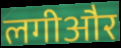
लगीऔर